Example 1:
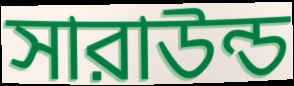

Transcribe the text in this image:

সারাউন্ড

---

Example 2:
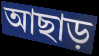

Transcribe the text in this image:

আছাড়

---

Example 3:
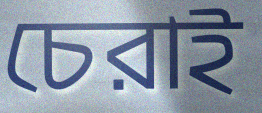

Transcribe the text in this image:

চেরাই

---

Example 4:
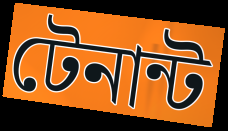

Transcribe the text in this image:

টেনান্ট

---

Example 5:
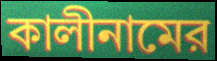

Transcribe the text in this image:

কালীনামের